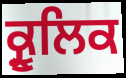
ਕ੍ਰੂਲਿਕ